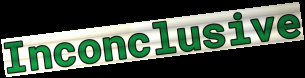
Inconclusive